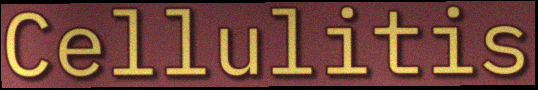
Cellulitis